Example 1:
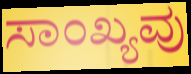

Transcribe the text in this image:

ಸಾಂಖ್ಯವು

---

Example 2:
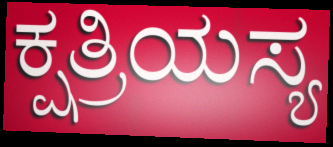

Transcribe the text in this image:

ಕ್ಷತ್ರಿಯಸ್ಯ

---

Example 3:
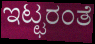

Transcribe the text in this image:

ಇಟ್ಟರಂತೆ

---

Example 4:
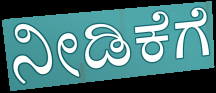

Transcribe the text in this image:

ನೀಡಿಕೆಗೆ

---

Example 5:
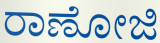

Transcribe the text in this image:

ರಾಣೋಜಿ